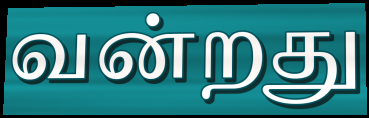
வன்றது